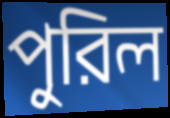
পুরিল